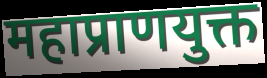
महाप्राणयुक्त